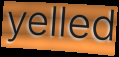
yelled